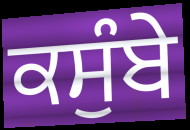
ਕਸੁੰਬੇ